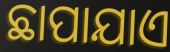
ଛାପାଯାଏ